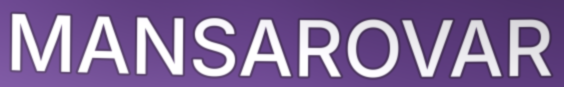
MANSAROVAR